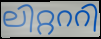
ലിറ്റററി